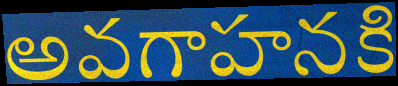
అవగాహనకి